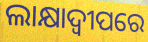
ଲାକ୍ଷାଦ୍ୱୀପରେ